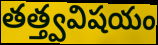
తత్త్వవిషయం